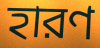
হারণ